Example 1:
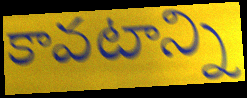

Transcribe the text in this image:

కావటాన్ని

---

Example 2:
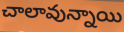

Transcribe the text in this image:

చాలావున్నాయి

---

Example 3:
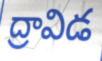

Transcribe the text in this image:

ద్రావిడ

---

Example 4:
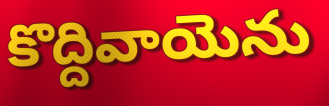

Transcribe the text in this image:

కొద్దివాయెను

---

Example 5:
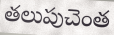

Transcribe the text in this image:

తలుపుచెంత